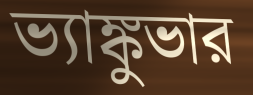
ভ্যাঙ্কুভার